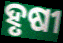
ହୃଷୀ